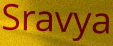
Sravya